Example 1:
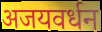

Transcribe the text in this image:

अजयवर्धन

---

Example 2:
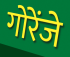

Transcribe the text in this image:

गोरेंजे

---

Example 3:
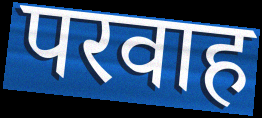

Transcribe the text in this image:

परवाह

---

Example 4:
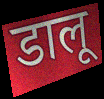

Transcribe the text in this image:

डालू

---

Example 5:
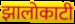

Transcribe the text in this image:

झालोकाटी